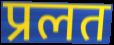
प्रलत